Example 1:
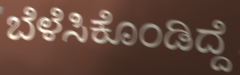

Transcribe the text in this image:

ಬೆಳೆಸಿಕೊಂಡಿದ್ದೆ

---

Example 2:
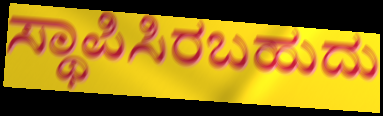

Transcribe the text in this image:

ಸ್ಥಾಪಿಸಿರಬಹುದು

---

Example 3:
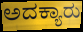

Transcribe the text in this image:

ಅದಕ್ಯಾರು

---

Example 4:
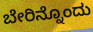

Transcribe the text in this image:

ಬೇರಿನ್ನೊಂದು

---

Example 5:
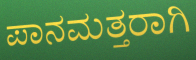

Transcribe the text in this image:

ಪಾನಮತ್ತರಾಗಿ